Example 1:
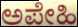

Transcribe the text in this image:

ಅಪೇಹಿ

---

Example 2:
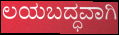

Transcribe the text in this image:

ಲಯಬದ್ಧವಾಗಿ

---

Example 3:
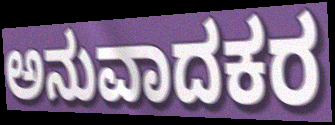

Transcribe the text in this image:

ಅನುವಾದಕರ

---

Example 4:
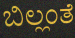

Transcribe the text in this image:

ಬಿಲ್ಲಂತೆ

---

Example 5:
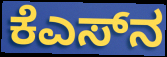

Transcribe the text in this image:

ಕೆಎಸ್‌ನ